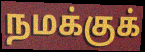
நமக்குக்